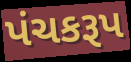
પંચકરૂપ